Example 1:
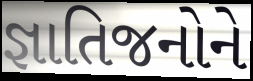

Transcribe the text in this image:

જ્ઞાતિજનોને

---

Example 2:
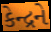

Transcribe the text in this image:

કેન્દ્રને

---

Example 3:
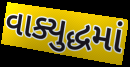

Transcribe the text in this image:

વાક્યુદ્ધમાં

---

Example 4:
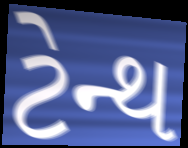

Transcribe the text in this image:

ટેન્થ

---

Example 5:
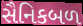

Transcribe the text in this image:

સૈનિકબળ